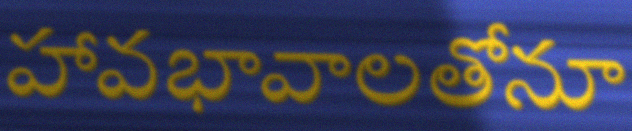
హావభావాలతోనూ